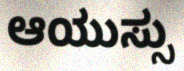
ಆಯುಸ್ಸು